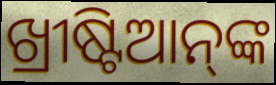
ଖ୍ରୀଷ୍ଟିଆନ୍‌ଙ୍କ